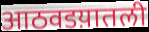
आठवडय़ातली